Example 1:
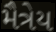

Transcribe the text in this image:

મૈત્રેય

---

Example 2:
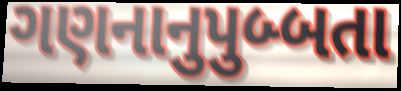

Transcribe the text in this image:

ગણનાનુપુબ્બતા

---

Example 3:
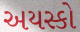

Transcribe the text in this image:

અયસ્કો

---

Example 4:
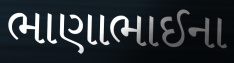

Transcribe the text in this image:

ભાણાભાઈના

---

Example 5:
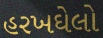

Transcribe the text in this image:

હરખઘેલો